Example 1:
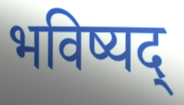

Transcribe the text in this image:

भविष्यद्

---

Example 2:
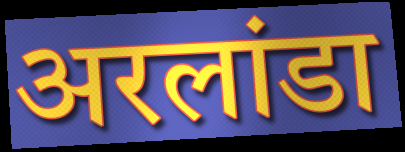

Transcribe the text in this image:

अरलांडा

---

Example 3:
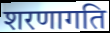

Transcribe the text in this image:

शरणागति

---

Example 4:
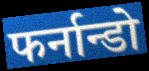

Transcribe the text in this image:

फर्नान्डो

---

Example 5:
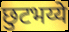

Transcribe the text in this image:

छुटभय्ये